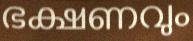
ഭക്ഷണവും